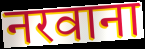
नरवाना